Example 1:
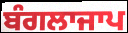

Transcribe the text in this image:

ਬੰਗਲਾਜਾਪ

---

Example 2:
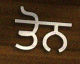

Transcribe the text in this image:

ਤੋਨ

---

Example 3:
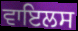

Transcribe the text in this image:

ਵਾਇਲਸ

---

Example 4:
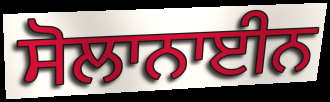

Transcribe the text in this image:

ਸੋਲਾਨਾਈਨ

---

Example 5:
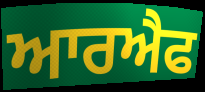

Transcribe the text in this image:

ਆਰਐਫ